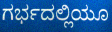
ಗರ್ಭದಲ್ಲಿಯೂ